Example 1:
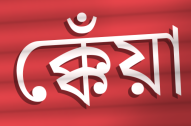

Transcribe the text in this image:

ক্কেঁয়া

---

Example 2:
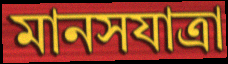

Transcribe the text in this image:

মানসযাত্রা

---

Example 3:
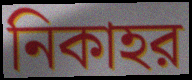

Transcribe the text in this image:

নিকাহর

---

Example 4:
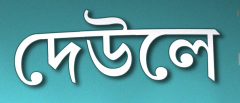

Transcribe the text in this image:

দেউলে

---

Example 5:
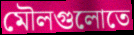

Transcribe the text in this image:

মৌলগুলোতে